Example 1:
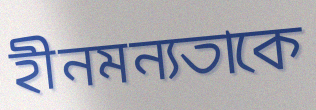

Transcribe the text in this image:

হীনমন্যতাকে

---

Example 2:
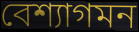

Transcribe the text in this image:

বেশ্যাগমন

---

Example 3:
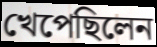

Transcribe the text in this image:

খেপেছিলেন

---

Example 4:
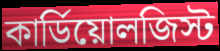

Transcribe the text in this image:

কার্ডিয়োলজিস্ট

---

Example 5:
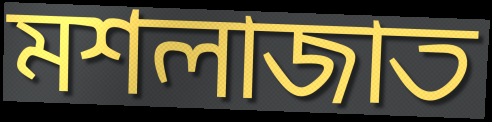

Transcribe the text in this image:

মশলাজাত